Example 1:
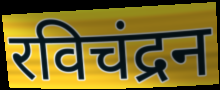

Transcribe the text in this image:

रविचंद्रन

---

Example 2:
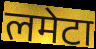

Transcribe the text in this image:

लमेटा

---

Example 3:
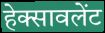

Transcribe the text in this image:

हेक्सावलेंट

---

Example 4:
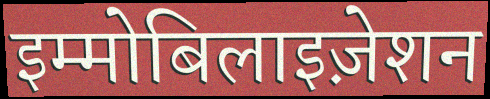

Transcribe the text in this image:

इम्मोबिलाइज़ेशन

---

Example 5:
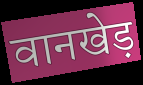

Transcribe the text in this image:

वानखेड़